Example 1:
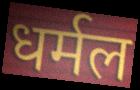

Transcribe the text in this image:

धर्मल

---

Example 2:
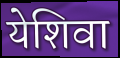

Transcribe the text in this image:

येशिवा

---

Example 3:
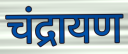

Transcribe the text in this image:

चंद्रायण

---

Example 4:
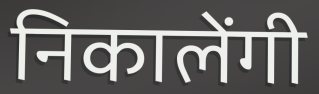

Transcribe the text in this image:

निकालेंगी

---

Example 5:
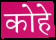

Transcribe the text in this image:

कोहे